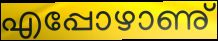
എപ്പോഴാണു്